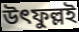
উৎফুল্লই